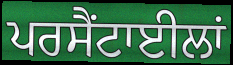
ਪਰਸੈਂਟਾਈਲਾਂ